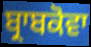
ਬ੍ਰਾਬਕੋਵਾ